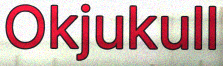
Okjukull